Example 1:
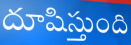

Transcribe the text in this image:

దూషిస్తుంది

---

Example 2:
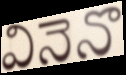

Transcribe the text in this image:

వినెనొ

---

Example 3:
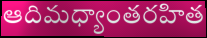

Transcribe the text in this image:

ఆదిమధ్యాంతరహిత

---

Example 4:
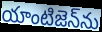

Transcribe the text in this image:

యాంటిజెన్‌ను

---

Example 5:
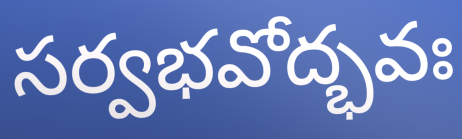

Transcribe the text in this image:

సర్వభవోద్భవః